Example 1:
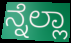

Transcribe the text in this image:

ನ್ನೆಲ್ಲಾ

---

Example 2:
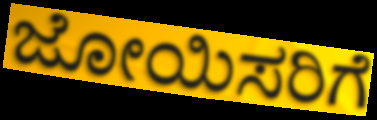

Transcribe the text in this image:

ಜೋಯಿಸರಿಗೆ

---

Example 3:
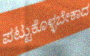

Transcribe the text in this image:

ಪಟ್ಟುಕೊಳ್ಳಬೇಕಾದ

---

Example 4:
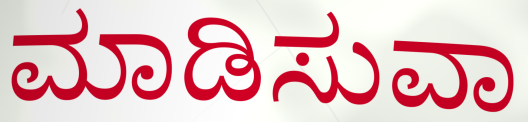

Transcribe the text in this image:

ಮಾಡಿಸುವಾ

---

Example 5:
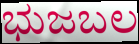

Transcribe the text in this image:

ಭುಜಬಲ